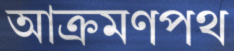
আক্রমণপথ